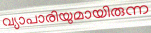
വ്യാപാരിയുമായിരുന്ന